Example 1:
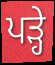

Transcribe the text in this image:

ਪਡ਼੍ਹੇ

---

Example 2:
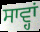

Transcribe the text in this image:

ਸਾਵ੍ਹਾਂ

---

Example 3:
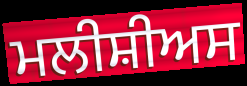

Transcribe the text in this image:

ਮਲੀਸ਼ੀਅਸ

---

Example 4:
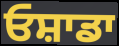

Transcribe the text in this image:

ਓਸ਼ਾਡਾ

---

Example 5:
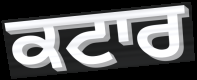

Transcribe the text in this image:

ਕਟਾਰ